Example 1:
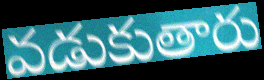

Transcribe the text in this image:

వడుకుతారు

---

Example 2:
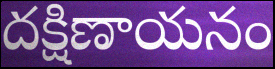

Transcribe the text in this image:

దక్షిణాయనం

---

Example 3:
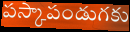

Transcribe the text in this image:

పస్కాపండుగకు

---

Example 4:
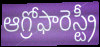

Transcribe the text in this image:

ఆగ్రోఫారెస్ట్రీ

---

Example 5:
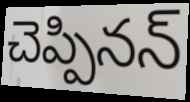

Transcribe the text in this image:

చెప్పినన్